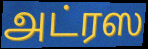
அட்ரஸ